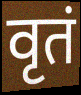
वृतं